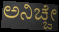
ಅನಿಚ್ಚೇ